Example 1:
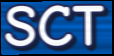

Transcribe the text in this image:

SCT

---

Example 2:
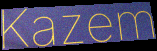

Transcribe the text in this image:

Kazem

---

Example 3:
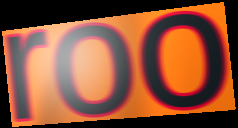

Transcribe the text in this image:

roo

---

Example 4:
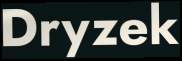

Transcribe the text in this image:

Dryzek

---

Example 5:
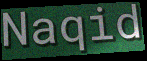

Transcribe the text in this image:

Naqid